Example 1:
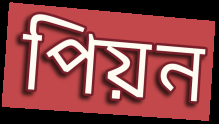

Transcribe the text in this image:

পিয়ন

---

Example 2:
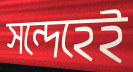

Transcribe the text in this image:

সন্দেহেই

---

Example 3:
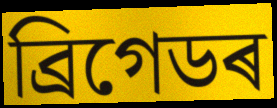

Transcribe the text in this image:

ব্ৰিগেডৰ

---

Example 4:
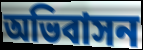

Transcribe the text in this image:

অভিবাসন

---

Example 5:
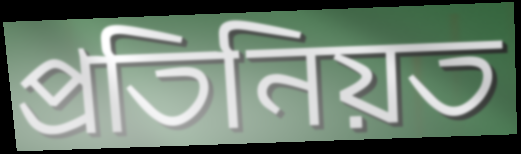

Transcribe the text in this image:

প্ৰতিনিয়ত